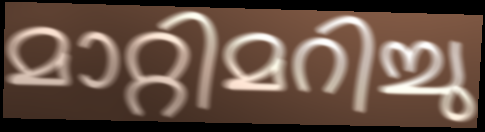
മാറ്റിമറിച്ചു